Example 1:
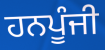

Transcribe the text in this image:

ਹਨਪੂੰਜੀ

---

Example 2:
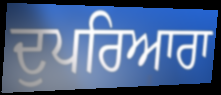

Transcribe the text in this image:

ਦੁਪਰਿਆਰਾ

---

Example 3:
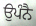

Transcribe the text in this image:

ਉਪੰਨੈ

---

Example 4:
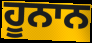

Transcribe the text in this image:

ਹੂਨਾਨ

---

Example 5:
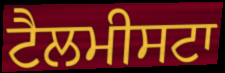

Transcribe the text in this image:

ਟੈਲਮੀਸਟਾ